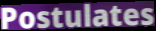
Postulates